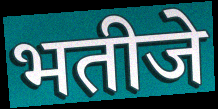
भतीजे